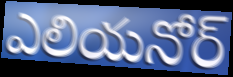
ఎలియనోర్